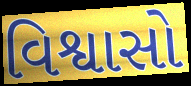
વિશ્વાસો